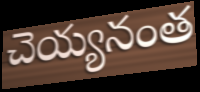
చెయ్యనంత